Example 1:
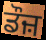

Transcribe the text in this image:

ਡੌਜ਼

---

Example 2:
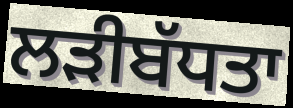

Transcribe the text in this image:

ਲੜੀਬੱਧਤਾ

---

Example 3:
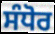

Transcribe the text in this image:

ਸੰਧੋਰ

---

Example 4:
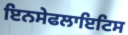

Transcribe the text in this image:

ਇਨਸੇਫਲਾਇਟਿਸ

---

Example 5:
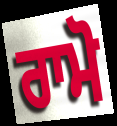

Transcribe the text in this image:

ਰਾਮੋ